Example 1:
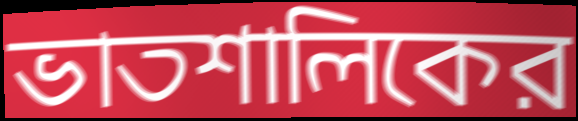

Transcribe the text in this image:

ভাতশালিকের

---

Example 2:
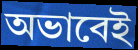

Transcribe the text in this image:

অভাবেই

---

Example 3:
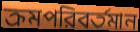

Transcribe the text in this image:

ক্রমপরিবর্তমান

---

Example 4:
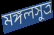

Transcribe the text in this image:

মঙ্গলসুত্র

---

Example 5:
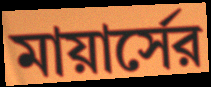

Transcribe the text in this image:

মায়ার্সের